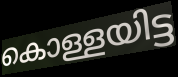
കൊള്ളയിട്ട